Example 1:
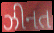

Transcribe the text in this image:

ઝીનત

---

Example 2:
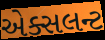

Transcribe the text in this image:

એક્સલન્ટ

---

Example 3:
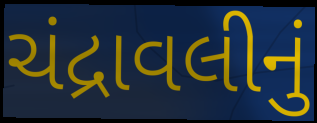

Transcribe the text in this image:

ચંદ્રાવલીનું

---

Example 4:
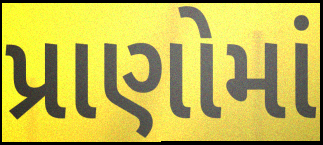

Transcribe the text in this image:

પ્રાણોમાં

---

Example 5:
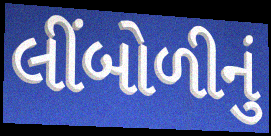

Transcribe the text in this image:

લીંબોળીનું